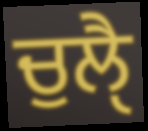
ਚੁਲੈੑ